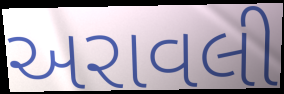
અરાવલી